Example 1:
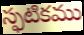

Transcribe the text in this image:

స్ఫటికము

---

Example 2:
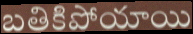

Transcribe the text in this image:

బతికిపోయాయి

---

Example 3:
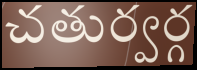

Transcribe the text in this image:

చతుర్వర్గ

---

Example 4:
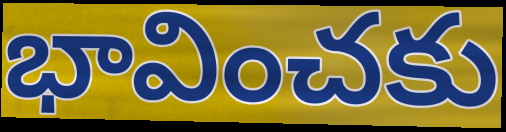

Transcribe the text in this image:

భావించకు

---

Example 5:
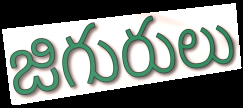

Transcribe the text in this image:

జిగురులు